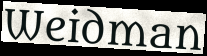
Weidman